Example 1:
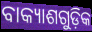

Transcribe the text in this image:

ବାକ୍ୟାଶଗୁଡ଼ିକ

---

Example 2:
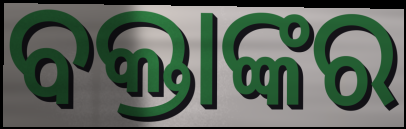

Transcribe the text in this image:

ବକ୍ତାଙ୍କର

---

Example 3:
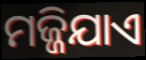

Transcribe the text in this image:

ମଜ୍ଜିଯାଏ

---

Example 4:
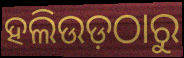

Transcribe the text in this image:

ହଲିଉଡ଼ଠାରୁ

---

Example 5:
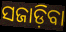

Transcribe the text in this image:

ସଜାଡ଼ିବା